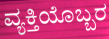
ವ್ಯಕ್ತಿಯೊಬ್ಬರ